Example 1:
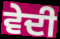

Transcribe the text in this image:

ਵੇਦੀ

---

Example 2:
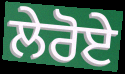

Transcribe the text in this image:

ਲੇਰੋਏ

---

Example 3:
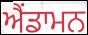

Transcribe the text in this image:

ਐਂਡਾਮਨ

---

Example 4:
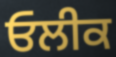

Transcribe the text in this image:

ਓਲੀਕ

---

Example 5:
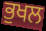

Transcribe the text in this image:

ਭੁਖਲ